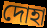
দোহা